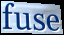
fuse